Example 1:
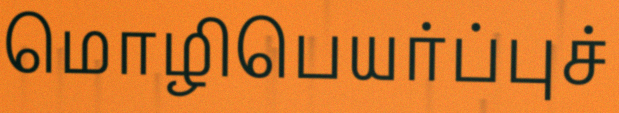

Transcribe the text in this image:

மொழிபெயர்ப்புச்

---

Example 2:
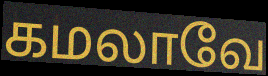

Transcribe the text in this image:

கமலாவே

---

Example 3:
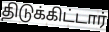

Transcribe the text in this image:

திடுக்கிட்டார்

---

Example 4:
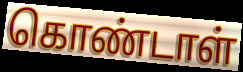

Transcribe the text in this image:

கொண்டாள்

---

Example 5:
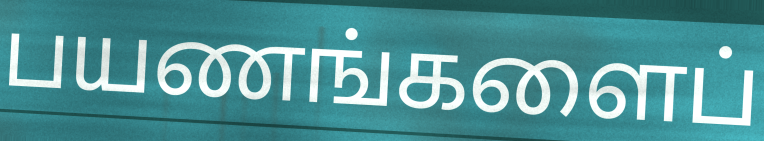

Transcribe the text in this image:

பயணங்களைப்